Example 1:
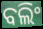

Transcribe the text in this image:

ବଲିଂ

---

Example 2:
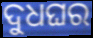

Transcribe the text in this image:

ଦୁଧଘର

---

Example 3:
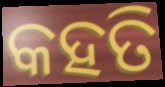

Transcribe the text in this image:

କହତି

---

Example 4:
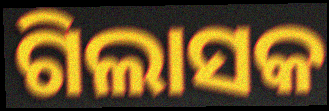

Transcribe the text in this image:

ଗିଲାସକ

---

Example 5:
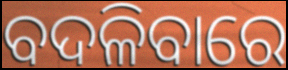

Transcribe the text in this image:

ବଦଳିବାରେ